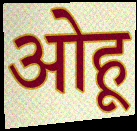
ओहू